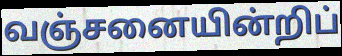
வஞ்சனையின்றிப்